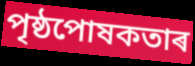
পৃষ্ঠপোষকতাৰ